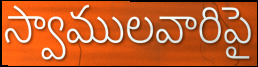
స్వాములవారిపై